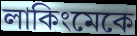
লাকিংমেকে